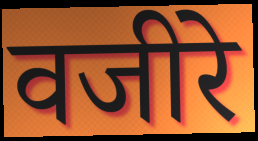
वजीरे